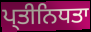
ਪ੍ਤੀਨਿਧਤਾ